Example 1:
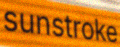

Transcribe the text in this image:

sunstroke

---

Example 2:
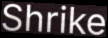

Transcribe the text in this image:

Shrike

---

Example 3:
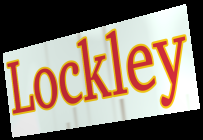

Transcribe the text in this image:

Lockley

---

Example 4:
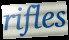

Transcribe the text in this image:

rifles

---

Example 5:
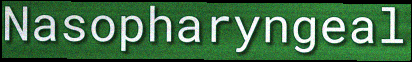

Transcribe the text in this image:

Nasopharyngeal